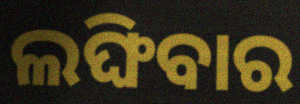
ଲଙ୍ଘିବାର